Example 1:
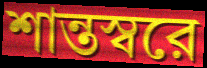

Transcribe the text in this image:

শান্তস্বরে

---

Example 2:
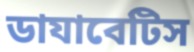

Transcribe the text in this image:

ডাযাবেটিস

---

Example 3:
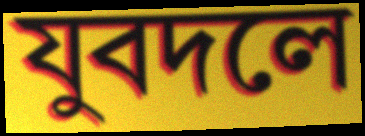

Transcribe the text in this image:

যুবদলে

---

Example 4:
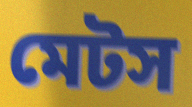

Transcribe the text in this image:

মেটস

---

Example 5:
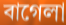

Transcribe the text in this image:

বাগেলা